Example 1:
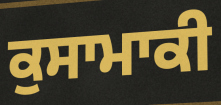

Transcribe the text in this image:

ਕੁਸਾਮਾਕੀ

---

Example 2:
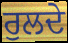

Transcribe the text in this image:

ਰੁਲਦੇ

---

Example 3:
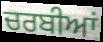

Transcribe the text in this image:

ਚਰਬੀਆਂ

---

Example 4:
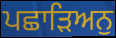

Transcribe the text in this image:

ਪਛਾੜਿਅਨੁ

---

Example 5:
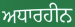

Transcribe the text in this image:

ਅਧਾਰਹੀਨ